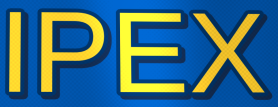
IPEX